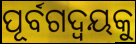
ପୂର୍ବଗଦ୍ଵୟକୁ